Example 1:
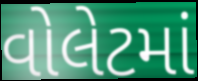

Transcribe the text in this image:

વોલેટમાં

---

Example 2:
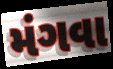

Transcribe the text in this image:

મંગવા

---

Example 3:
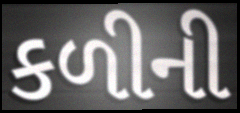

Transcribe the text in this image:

કળીની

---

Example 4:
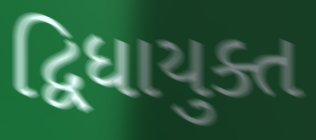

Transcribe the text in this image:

દ્વિધાયુક્ત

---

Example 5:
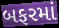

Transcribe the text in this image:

બફરમાં